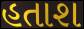
હતાશ